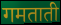
गमताती